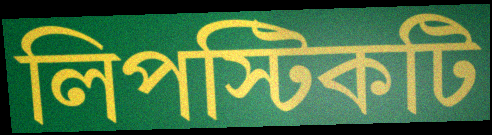
লিপস্টিকটি